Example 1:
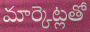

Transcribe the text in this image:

మార్కెట్లతో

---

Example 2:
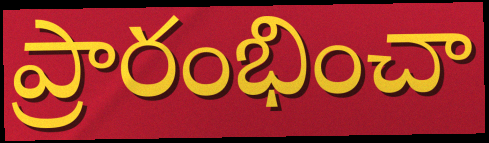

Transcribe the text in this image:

ప్రారంభించా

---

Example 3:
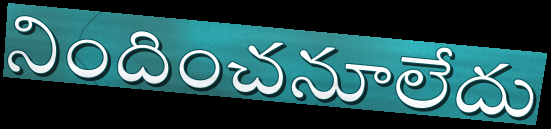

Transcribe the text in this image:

నిందించనూలేదు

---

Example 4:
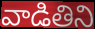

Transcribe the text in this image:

వాడితిని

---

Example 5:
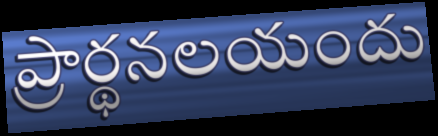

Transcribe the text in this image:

ప్రార్థనలయందు